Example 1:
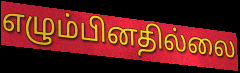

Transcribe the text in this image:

எழும்பினதில்லை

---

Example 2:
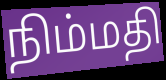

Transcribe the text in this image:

நிம்மதி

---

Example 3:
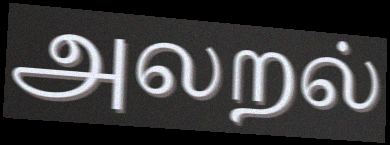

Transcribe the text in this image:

அலறல்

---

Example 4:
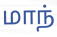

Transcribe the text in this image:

மாந்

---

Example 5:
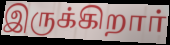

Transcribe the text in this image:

இருக்கிறார்